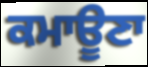
ਕਮਾਊਣਾ